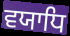
ਵਯਾਧਿ